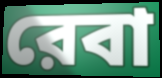
রেবা